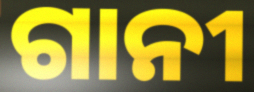
ଗାନୀ